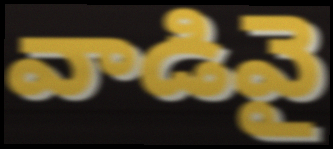
వాడివై